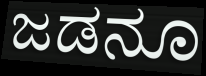
ಜಡನೂ